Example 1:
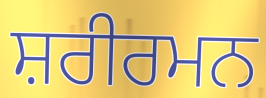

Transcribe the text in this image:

ਸ਼ਰੀਰਮਨ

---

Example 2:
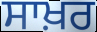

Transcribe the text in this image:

ਸਾਖ਼ਰ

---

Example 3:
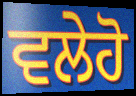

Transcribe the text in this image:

ਵਲੇਹੋ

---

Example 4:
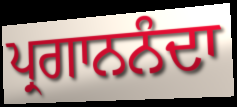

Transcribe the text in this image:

ਪ੍ਰਗਾਨਨੰਦਾ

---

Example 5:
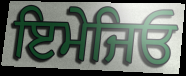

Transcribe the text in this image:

ਇਮੇਜਿਓ